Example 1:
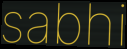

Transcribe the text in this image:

sabhi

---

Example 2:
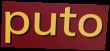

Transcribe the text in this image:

puto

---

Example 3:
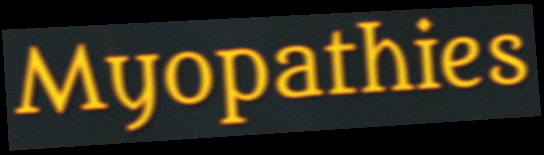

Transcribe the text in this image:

Myopathies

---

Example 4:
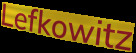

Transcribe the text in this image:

Lefkowitz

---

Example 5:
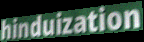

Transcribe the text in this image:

hinduization